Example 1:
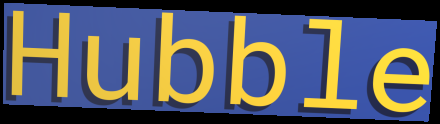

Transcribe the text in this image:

Hubble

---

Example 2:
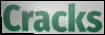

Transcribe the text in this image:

Cracks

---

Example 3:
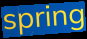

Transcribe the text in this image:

spring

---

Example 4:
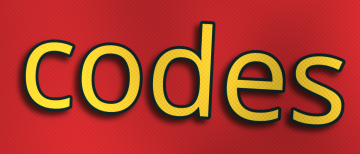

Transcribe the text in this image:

codes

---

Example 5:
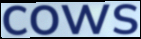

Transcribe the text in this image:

cows